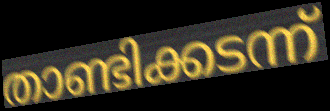
താണ്ടിക്കടന്ന്